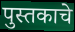
पुस्तकाचे